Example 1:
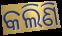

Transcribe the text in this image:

କଲିଣି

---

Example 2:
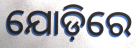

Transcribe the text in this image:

ଯୋଡ଼ିରେ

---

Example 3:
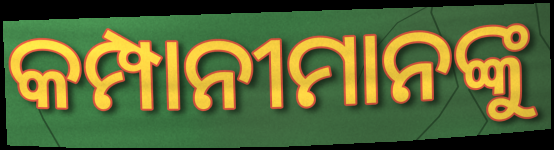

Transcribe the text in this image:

କମ୍ପାନୀମାନଙ୍କୁ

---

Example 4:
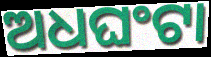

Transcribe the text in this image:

ଅଧଘଂଟା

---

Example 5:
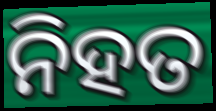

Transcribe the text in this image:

ନିହତ